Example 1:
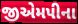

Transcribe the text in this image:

જીએમપીના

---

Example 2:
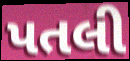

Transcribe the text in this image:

પતલી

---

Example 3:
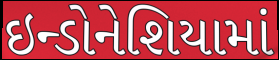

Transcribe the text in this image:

ઇન્ડોનેશિયામાં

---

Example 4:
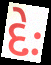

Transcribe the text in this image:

દેઃ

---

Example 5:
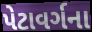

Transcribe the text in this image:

પેટાવર્ગના